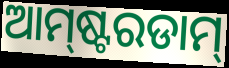
ଆମ୍‍ଷ୍ଟରଡାମ୍